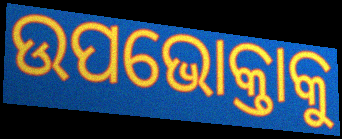
ଉପଭୋକ୍ତାକୁ